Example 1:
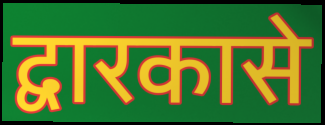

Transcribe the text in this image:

द्वारकासे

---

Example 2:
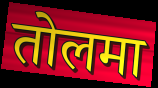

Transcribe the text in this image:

तोलमा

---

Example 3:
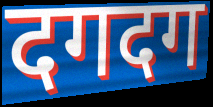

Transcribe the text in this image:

दगदग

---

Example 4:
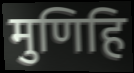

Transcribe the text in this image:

मुणिहि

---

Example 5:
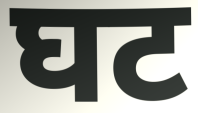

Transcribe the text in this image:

घट